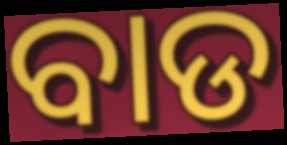
ବାଡ